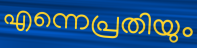
എന്നെപ്രതിയും